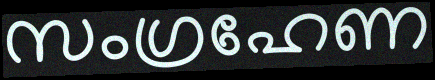
സംഗ്രഹേണ